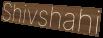
Shivshahi